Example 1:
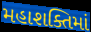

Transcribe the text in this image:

મહાશક્તિમાં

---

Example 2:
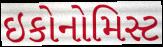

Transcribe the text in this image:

ઇકોનોમિસ્ટ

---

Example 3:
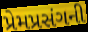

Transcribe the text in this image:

પ્રેમપ્રસંગની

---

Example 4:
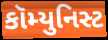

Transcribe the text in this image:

કૉમ્યુનિસ્ટ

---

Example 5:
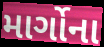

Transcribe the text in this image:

માર્ગોના